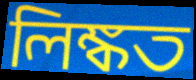
লিঙ্কত